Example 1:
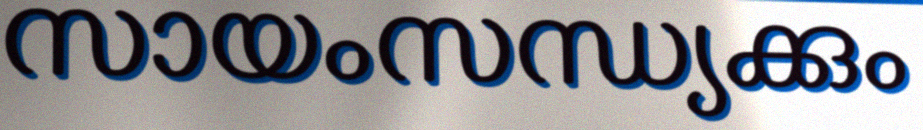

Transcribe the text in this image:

സായംസന്ധ്യക്കും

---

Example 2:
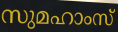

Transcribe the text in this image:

സുമഹാംസ്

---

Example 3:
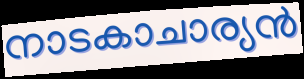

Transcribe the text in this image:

നാടകാചാര്യൻ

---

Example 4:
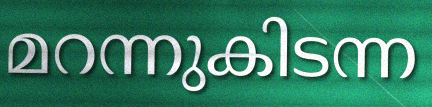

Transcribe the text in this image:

മറന്നുകിടന്ന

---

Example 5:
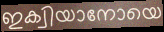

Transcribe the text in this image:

ഇക്വിയാനോയെ